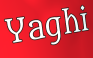
Yaghi